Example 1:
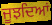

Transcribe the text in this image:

ਜੂਝਦਿਆਂ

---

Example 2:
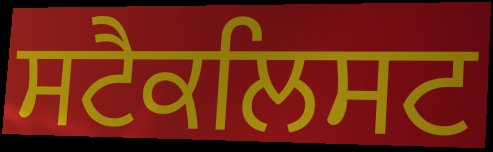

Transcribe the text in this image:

ਸਟੈਕਲਿਸਟ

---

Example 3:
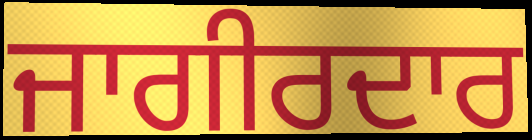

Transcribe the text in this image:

ਜਾਗੀਰਦਾਰ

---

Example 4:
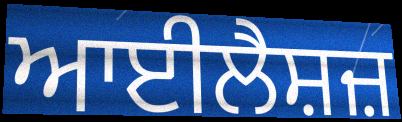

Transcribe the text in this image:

ਆਈਲੈਸ਼ਜ਼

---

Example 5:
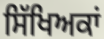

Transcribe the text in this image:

ਸਿੱਖਿਅਕਾਂ